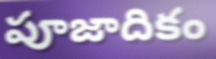
పూజాదికం